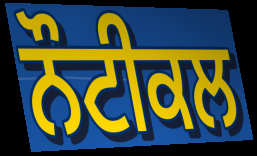
ਨੌਟੀਕਲ